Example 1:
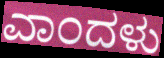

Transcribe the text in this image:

ಎಾಂದಳು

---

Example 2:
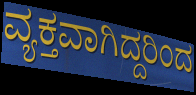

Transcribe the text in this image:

ವ್ಯಕ್ತವಾಗಿದ್ದರಿಂದ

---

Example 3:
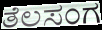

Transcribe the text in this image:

ತೆಲಸಂಗ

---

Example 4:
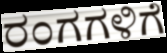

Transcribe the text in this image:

ರಂಗಗಳಿಗೆ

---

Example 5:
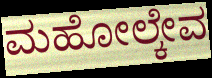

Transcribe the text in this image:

ಮಹೋಲ್ಕೇವ